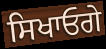
ਸਿਖਾਓਗੇ